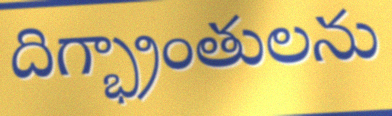
దిగ్భ్రాంతులను